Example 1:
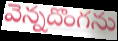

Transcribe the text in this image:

వెన్నదొంగను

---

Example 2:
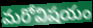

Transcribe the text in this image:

మరోవిషయం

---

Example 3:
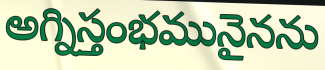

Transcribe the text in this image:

అగ్నిస్తంభమునైనను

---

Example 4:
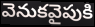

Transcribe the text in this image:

వెనుకవైపుకి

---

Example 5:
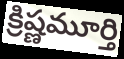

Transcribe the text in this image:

క్రిష్ణమూర్తి